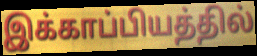
இக்காப்பியத்தில்